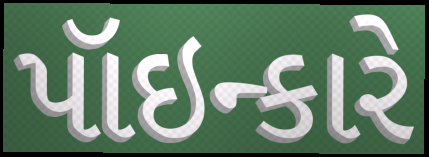
પૉઇન્કારે